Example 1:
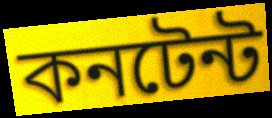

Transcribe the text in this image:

কনটেন্ট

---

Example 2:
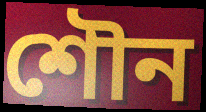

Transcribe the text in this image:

শৌন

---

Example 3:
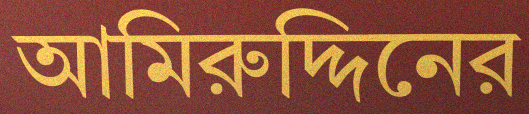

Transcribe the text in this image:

আমিরুদ্দিনের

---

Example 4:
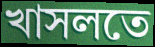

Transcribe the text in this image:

খাসলতে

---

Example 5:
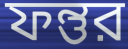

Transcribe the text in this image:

ফন্তুর